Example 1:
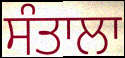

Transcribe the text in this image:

ਸੰਤਾਲਾ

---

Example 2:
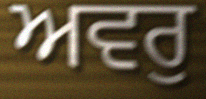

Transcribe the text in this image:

ਅਵਰੁ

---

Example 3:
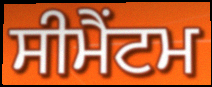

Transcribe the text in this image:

ਸੀਮੈਂਟਮ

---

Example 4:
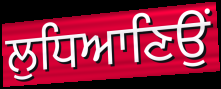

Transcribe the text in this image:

ਲੁਧਿਆਣਿਉਂ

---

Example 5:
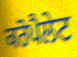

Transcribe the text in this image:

ਕਰੋਪੈਲੇਟ